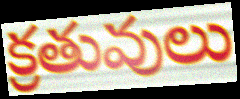
క్రతువులు